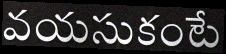
వయసుకంటే